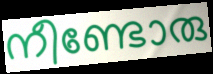
നീണ്ടോരു